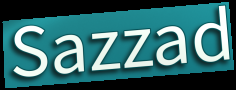
Sazzad